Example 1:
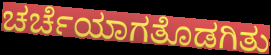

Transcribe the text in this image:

ಚರ್ಚೆಯಾಗತೊಡಗಿತು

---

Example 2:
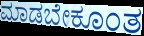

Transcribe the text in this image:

ಮಾಡಬೇಕೂಂತ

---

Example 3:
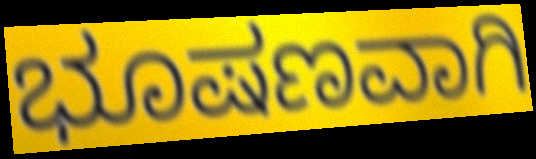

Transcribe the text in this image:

ಭೂಷಣವಾಗಿ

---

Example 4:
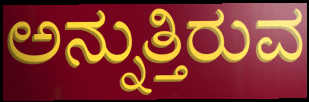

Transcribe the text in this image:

ಅನ್ನುತ್ತಿರುವ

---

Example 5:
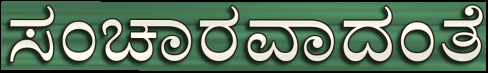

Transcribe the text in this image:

ಸಂಚಾರವಾದಂತೆ